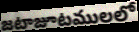
జటాజూటములలో